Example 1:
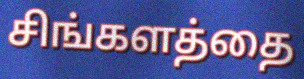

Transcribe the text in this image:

சிங்களத்தை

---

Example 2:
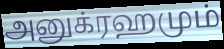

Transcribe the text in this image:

அனுக்ரஹமும்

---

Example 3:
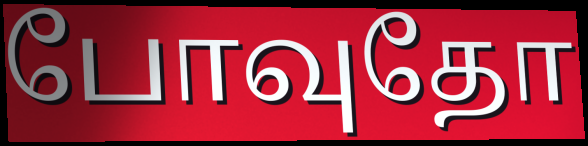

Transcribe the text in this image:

போவுதோ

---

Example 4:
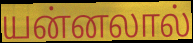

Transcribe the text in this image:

யன்னலால்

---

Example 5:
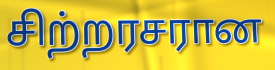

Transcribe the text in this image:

சிற்றரசரான